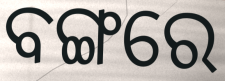
ବଙ୍ଗରେ